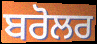
ਬਰੋਲਰ